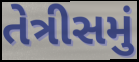
તેત્રીસમું